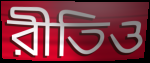
রীতিও